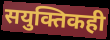
सयुक्तिकही